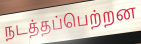
நடத்தப்பெற்றன